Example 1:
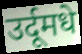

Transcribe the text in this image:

उर्दूमधे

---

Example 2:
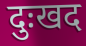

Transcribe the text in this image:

दुःखद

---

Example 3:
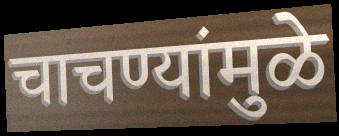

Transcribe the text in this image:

चाचण्यांमुळे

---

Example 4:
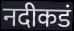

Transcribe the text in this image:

नदीकडं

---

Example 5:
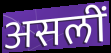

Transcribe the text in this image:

असलीं